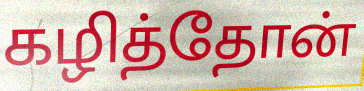
கழித்தோன்